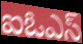
ఐఓఎస్